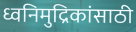
ध्वनिमुद्रिकांसाठी